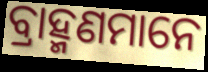
ବ୍ରାହ୍ମଣମାନେ